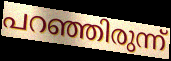
പറഞ്ഞിരുന്ന്